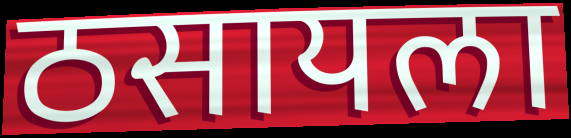
ठसायला